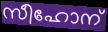
സീഹോന്